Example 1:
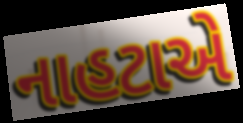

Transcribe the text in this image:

નાહટાએ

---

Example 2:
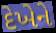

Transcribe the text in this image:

દેખેને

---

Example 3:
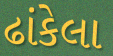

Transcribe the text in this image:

ઢાંકેલા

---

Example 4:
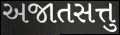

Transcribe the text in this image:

અજાતસત્તુ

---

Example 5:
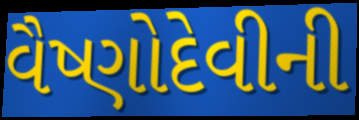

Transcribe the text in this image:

વૈષ્ણોદેવીની